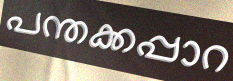
പന്തക്കപ്പാറ